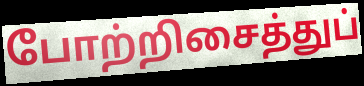
போற்றிசைத்துப்